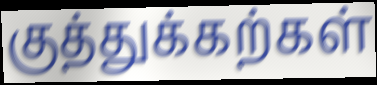
குத்துக்கற்கள்